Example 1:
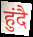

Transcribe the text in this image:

हुंदै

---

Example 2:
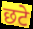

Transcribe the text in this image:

छटे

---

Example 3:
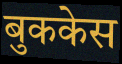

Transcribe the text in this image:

बुककेस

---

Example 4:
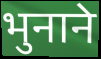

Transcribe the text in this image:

भुनाने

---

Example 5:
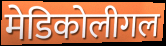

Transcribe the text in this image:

मेडिकोलीगल